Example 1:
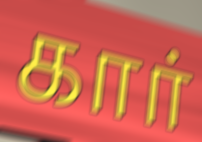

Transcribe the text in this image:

கார்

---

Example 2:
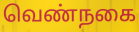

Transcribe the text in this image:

வெண்நகை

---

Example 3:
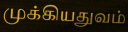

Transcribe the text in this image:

முக்கியதுவம்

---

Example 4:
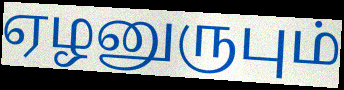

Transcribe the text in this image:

ஏழனுருபும்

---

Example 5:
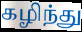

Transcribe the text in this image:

கழிந்து